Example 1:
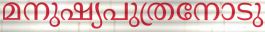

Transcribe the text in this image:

മനുഷ്യപുത്രനോടു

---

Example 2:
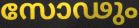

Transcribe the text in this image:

സോഢും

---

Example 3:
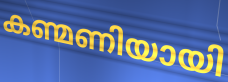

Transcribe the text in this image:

കണ്മണിയായി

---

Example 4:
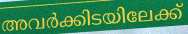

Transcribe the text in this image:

അവർക്കിടയിലേക്ക്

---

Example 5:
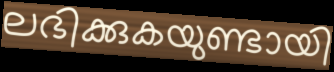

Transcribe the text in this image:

ലഭിക്കുകയുണ്ടായി